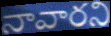
నావారని